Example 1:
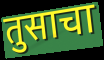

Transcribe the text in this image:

तुसाचा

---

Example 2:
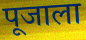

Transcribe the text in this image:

पूजाला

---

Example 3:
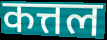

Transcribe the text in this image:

कत्तल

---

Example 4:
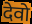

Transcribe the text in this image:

देवो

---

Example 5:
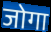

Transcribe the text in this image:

जोगा